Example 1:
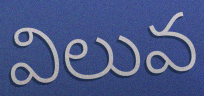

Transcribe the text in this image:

విలువ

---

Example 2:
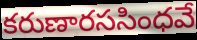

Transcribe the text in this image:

కరుణారససింధవే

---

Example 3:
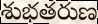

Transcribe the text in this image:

శుభతరుణ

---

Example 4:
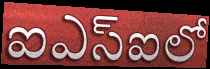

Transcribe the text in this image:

ఐఎస్ఐలో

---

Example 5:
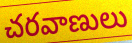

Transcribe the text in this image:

చరవాణులు